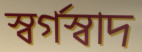
স্বর্গস্বাদ